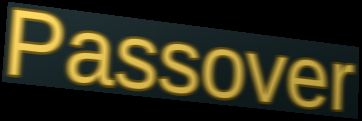
Passover